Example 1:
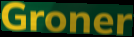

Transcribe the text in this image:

Groner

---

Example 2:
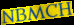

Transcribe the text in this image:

NBMCH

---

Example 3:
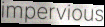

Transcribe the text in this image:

impervious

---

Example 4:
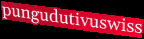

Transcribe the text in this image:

pungudutivuswiss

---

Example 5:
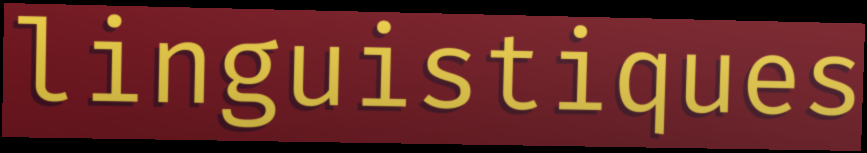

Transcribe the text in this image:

linguistiques